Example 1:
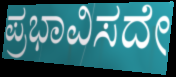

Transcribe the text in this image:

ಪ್ರಭಾವಿಸದೇ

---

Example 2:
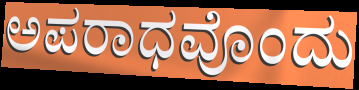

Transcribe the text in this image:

ಅಪರಾಧವೊಂದು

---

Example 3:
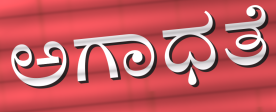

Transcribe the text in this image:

ಅಗಾಧತೆ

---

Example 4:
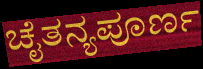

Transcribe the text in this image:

ಚೈತನ್ಯಪೂರ್ಣ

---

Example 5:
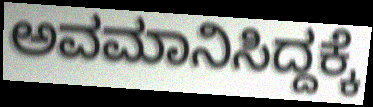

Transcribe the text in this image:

ಅವಮಾನಿಸಿದ್ದಕ್ಕೆ